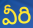
వీరి